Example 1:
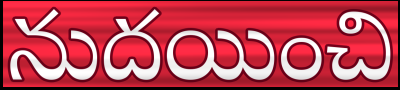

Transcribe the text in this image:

నుదయించి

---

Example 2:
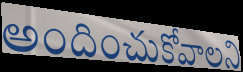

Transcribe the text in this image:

అందించుకోవాలని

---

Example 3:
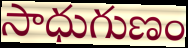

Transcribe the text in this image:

సాధుగుణం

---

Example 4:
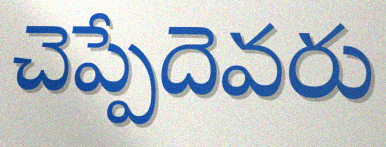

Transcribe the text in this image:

చెప్పేదెవరు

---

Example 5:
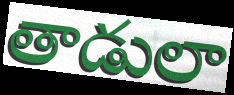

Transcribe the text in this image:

తాడులా